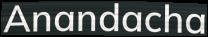
Anandacha